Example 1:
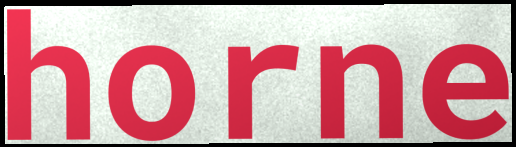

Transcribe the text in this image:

horne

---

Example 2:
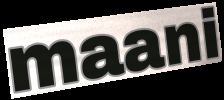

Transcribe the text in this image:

maani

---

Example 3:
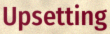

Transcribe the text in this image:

Upsetting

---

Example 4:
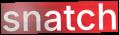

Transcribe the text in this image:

snatch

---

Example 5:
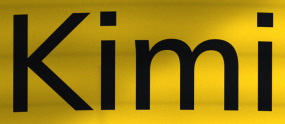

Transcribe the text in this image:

Kimi